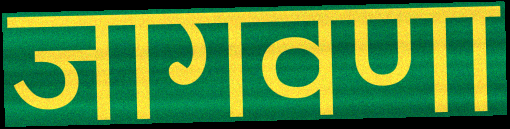
जागवणा